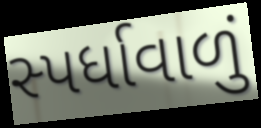
સ્પર્ધાવાળું